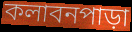
কলাবনপাড়া